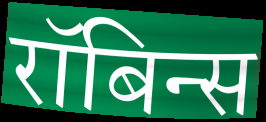
रॉबिन्स